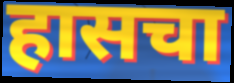
हासचा